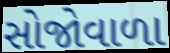
સોજોવાળા